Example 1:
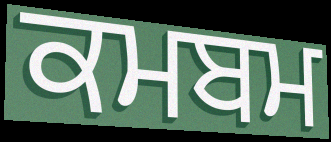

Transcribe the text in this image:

ਕਮਬਮ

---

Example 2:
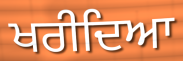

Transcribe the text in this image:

ਖਰੀਦਿਆ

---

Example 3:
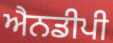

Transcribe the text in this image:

ਐਨਡੀਪੀ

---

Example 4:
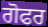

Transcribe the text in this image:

ਗੋਫਰ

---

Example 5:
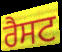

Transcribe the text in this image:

ਰੈਸਟ